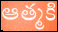
ఆత్మకి